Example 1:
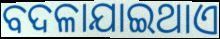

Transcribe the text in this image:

ବଦଳାଯାଇଥାଏ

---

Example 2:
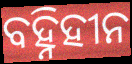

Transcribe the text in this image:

ବହ୍ନିହୀନ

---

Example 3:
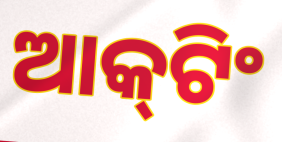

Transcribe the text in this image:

ଆକ୍‌ଟିଂ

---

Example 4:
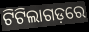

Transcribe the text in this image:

ଟିଟିଲାଗଡ଼ରେ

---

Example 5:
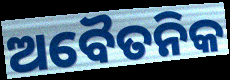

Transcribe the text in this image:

ଅବୈତନିକ